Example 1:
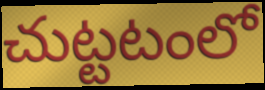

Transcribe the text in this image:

చుట్టటంలో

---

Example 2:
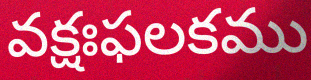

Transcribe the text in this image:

వక్షఃఫలకము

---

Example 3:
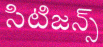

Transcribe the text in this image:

సిటిజన్స్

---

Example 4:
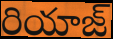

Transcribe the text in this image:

రియాజ్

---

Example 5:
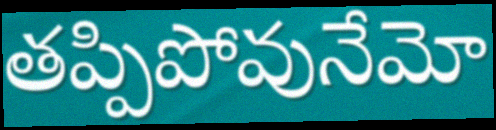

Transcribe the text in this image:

తప్పిపోవునేమో